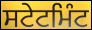
ਸਟੇਟਮਿੰਟ